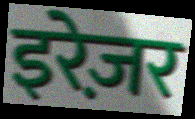
इरेज़र